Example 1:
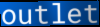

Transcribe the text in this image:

outlet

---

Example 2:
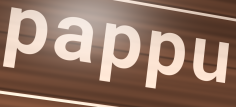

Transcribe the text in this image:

pappu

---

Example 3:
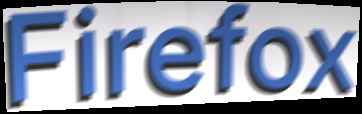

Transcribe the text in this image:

Firefox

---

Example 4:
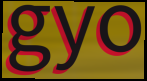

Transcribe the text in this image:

gyo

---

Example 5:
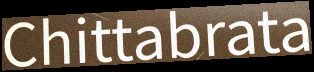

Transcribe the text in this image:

Chittabrata